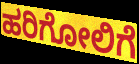
ಹರಿಗೋಲಿಗೆ